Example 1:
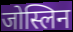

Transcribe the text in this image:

जोस्लिन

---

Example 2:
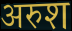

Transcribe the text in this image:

अरुश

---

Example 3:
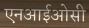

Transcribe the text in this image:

एनआईओसी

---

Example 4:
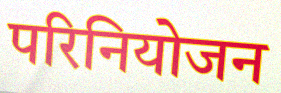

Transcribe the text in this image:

परिनियोजन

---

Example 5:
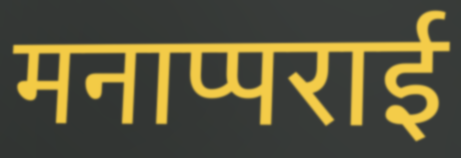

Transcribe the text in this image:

मनाप्पराई